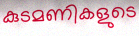
കുടമണികളുടെ